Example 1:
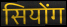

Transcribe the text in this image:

सियोंग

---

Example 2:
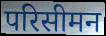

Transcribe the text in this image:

परिसीमन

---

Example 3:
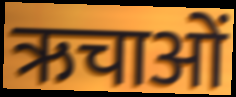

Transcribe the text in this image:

ऋचाओं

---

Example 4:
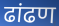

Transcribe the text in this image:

ढांढण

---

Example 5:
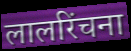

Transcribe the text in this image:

लालरिंचना